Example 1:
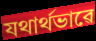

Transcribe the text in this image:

যথাৰ্থভাৱে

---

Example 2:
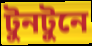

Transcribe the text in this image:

টুনটুনে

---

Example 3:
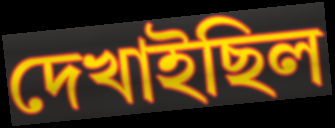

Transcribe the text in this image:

দেখাইছিল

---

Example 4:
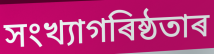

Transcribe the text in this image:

সংখ্যাগৰিষ্ঠতাৰ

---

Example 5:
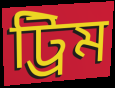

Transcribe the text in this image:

ট্ৰিম